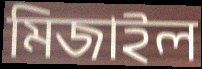
মিজাইল